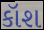
કૉશ